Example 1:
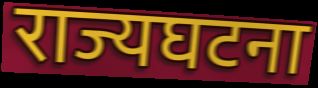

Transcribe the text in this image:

राज्यघटना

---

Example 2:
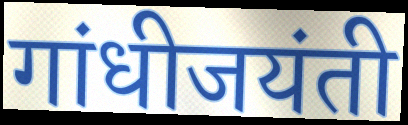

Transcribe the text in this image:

गांधीजयंती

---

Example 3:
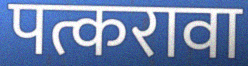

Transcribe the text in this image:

पत्करावा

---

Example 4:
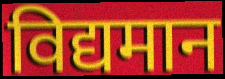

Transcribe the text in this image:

विद्यमान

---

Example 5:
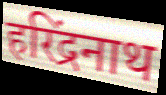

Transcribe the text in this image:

हरिंद्रनाथ